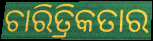
ଚାରିତ୍ରିକତାର